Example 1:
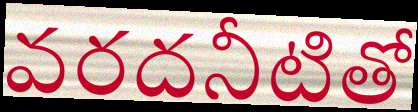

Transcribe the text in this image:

వరదనీటితో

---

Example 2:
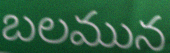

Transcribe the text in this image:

బలమున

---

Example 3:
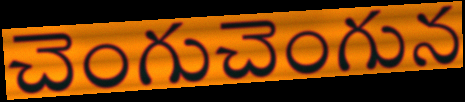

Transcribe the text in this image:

చెంగుచెంగున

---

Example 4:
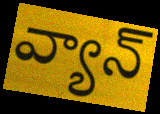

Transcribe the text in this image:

వ్యాన్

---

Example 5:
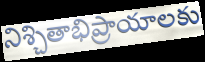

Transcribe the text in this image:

నిశ్చితాభిప్రాయాలకు